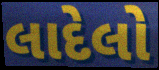
લાદેલો